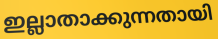
ഇല്ലാതാക്കുന്നതായി